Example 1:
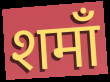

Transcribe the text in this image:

शमाँ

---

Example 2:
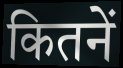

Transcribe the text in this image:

कितनें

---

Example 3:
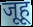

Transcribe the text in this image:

जूहू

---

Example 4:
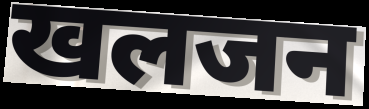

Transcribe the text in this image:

खलजन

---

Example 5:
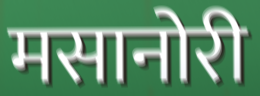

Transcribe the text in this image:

मसानोरी